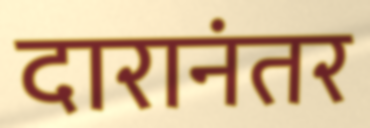
दारानंतर